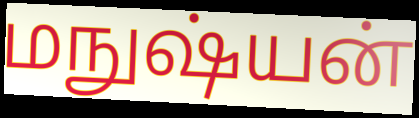
மநுஷ்யன்